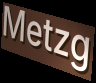
Metzg